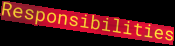
Responsibilities